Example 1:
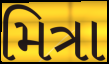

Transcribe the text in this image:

મિત્રા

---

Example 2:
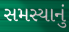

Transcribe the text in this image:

સમસ્યાનું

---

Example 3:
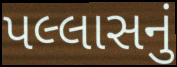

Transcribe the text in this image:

પલ્લાસનું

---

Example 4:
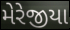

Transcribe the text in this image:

મેરેજીયા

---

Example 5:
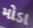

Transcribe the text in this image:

મોડા